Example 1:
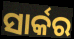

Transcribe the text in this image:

ସାର୍କର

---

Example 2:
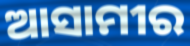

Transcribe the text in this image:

ଆସାମୀର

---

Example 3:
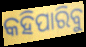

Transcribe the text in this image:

କହିପାରିବୁ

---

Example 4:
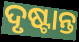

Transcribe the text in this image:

ଦୃଷ୍ଟାନ୍ତ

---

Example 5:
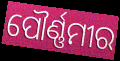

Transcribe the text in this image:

ପୌର୍ଣ୍ଣମୀର